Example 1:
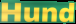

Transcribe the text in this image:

Hund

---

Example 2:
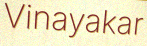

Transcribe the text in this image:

Vinayakar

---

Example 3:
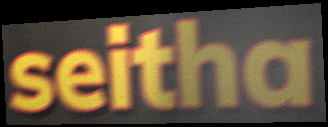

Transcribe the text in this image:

seitha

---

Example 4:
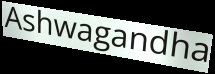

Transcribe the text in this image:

Ashwagandha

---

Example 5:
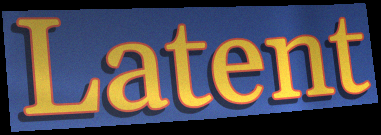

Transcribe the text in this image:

Latent